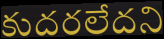
కుదరలేదని